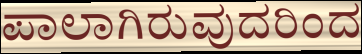
ಪಾಲಾಗಿರುವುದರಿಂದ